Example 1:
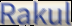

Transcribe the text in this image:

Rakul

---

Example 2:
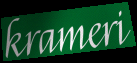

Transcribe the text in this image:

krameri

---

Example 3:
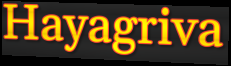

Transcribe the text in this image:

Hayagriva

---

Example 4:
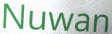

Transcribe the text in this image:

Nuwan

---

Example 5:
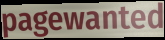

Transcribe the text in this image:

pagewanted